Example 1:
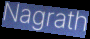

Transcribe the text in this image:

Nagrath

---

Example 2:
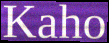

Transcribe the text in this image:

Kaho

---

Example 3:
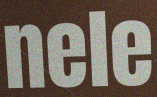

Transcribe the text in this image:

nele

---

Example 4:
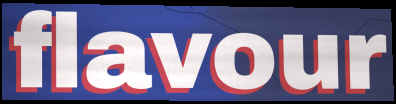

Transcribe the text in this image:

flavour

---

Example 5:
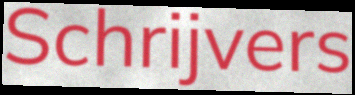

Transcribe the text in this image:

Schrijvers